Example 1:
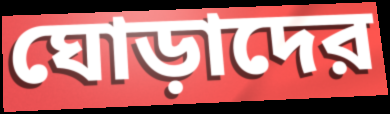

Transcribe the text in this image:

ঘোড়াদের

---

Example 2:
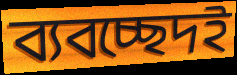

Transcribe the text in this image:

ব্যবচ্ছেদই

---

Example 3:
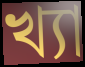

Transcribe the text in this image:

খ্যা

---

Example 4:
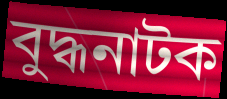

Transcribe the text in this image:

বুদ্ধনাটক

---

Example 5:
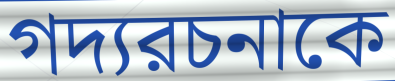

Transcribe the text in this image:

গদ্যরচনাকে